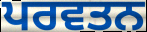
ਪਰਵਤਨ